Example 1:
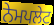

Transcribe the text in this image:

ਨੇਮਪਲੇਟ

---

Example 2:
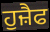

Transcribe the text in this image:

ਹੁਜ਼ੈਫ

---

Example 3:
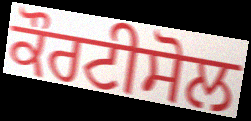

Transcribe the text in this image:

ਕੌਰਟੀਸੋਲ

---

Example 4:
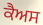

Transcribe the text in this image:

ਕੈਅਸ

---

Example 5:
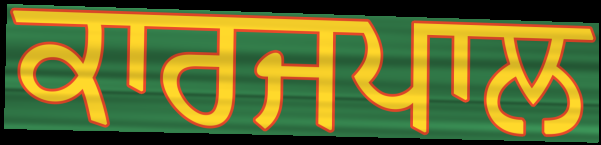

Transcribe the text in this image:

ਕਾਰਜਪਾਲ